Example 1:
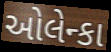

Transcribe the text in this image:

ઓલેન્કા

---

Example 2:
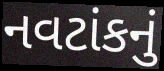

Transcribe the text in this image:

નવટાંકનું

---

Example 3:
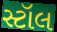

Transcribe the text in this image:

સ્ટૉલ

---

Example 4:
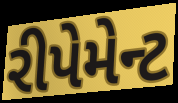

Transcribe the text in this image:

રીપેમેન્ટ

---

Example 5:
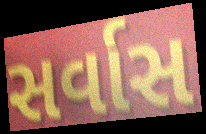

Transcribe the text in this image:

સર્વાસ